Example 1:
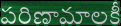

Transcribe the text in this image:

పరిణామాలకీ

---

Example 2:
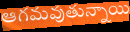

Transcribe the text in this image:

ఆగమవుతున్నాయి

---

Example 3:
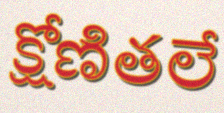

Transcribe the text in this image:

క్షోణితలే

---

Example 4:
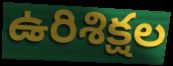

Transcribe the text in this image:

ఉరిశిక్షల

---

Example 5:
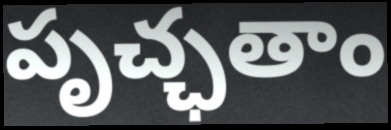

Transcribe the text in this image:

పృచ్ఛతాం